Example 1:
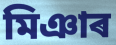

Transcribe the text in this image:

মিঞাৰ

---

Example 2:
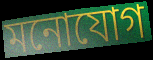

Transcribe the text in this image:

মনোযোগ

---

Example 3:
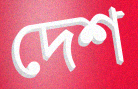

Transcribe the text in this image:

দেশ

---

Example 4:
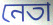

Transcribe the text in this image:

নেতা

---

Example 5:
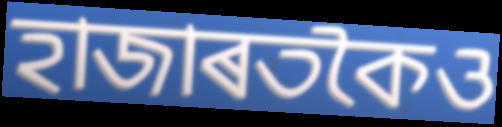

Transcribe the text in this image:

হাজাৰতকৈও